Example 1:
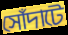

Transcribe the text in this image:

সোঁদাটে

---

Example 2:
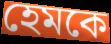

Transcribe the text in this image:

হেমকে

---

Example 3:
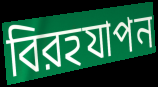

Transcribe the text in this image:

বিরহযাপন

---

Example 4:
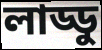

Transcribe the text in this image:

লাড্ডু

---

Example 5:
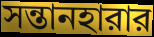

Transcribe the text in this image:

সন্তানহারার